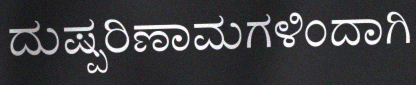
ದುಷ್ಪರಿಣಾಮಗಳಿಂದಾಗಿ